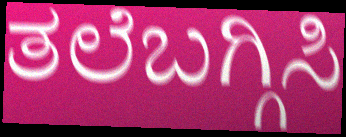
ತಲೆಬಗ್ಗಿಸಿ